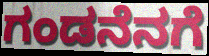
ಗಂಡನೆನಗೆ